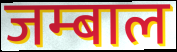
जम्बाल